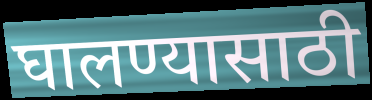
घालण्यासाठी